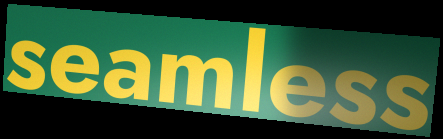
seamless